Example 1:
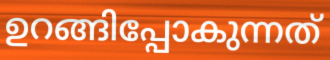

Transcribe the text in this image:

ഉറങ്ങിപ്പോകുന്നത്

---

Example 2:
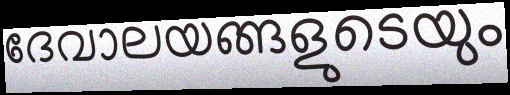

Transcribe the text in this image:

ദേവാലയങ്ങളുടെയും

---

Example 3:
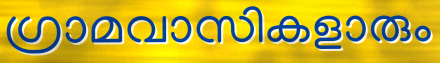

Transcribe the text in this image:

ഗ്രാമവാസികളാരും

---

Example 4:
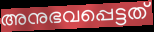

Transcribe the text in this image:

അനുഭവപ്പെട്ടത്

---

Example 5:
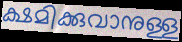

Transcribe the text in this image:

ക്ഷമിക്കുവാനുള്ള